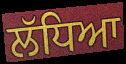
ਲੱਧਿਆ